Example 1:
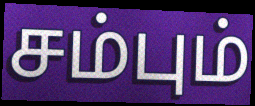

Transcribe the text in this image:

சம்பும்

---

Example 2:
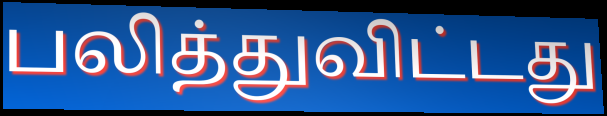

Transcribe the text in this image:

பலித்துவிட்டது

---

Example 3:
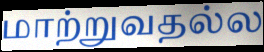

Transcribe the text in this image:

மாற்றுவதல்ல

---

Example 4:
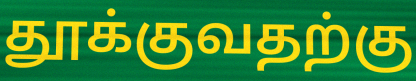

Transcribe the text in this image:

தூக்குவதற்கு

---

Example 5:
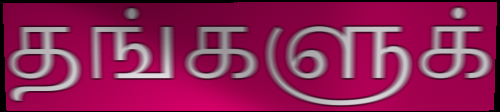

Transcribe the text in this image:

தங்களுக்